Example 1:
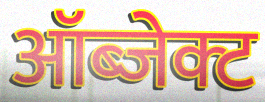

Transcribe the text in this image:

ऑब्‍जेक्‍ट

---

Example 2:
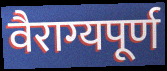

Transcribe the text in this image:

वैराग्यपूर्ण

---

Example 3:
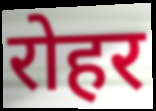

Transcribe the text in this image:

रोहर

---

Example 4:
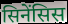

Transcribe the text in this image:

सिनेंसिस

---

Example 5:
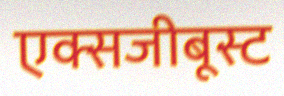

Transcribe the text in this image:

एक्सजीबूस्ट